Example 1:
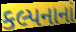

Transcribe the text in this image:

કલ્પનાનાં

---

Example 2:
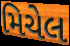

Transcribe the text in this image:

મિચેલ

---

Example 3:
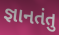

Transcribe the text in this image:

જ્ઞાનતંતુ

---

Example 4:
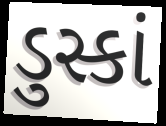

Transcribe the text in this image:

ડુસ્કાં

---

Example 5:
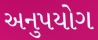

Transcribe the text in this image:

અનુપયોગ